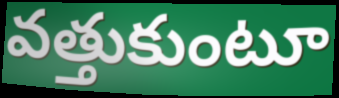
వత్తుకుంటూ